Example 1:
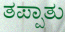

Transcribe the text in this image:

ತಪ್ಪಾತು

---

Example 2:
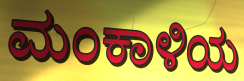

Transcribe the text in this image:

ಮಂಕಾಳಿಯ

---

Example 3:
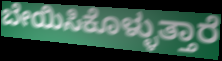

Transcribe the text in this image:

ಬೇಯಿಸಿಕೊಳ್ಳುತ್ತಾರೆ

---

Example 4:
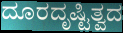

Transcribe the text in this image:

ದೂರದೃಷ್ಟಿತ್ವದ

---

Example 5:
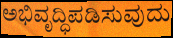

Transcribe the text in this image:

ಅಭಿವೃದ್ಧಿಪಡಿಸುವುದು